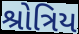
શ્રોત્રિય